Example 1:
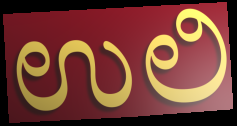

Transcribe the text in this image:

ಉಲಿ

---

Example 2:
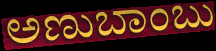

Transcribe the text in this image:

ಅಣುಬಾಂಬು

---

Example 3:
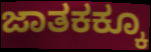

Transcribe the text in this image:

ಜಾತಕಕ್ಕೂ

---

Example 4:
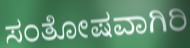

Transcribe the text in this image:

ಸಂತೋಷವಾಗಿರಿ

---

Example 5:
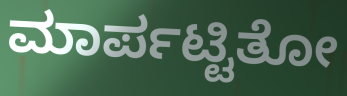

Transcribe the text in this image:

ಮಾರ್ಪಟ್ಟಿತೋ